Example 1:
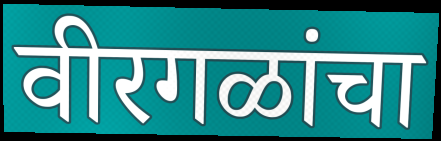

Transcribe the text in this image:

वीरगळांचा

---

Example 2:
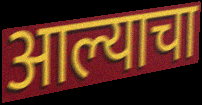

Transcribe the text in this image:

आल्‍याचा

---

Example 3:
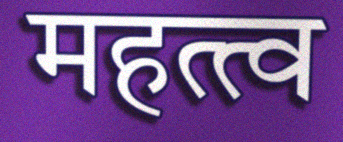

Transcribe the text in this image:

महत्‍त्‍व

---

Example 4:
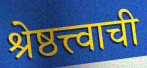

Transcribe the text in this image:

श्रेष्ठत्त्वाची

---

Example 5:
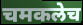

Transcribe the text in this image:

चमकलेच